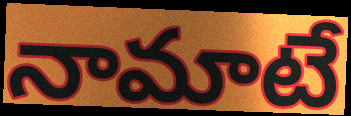
నామాటే